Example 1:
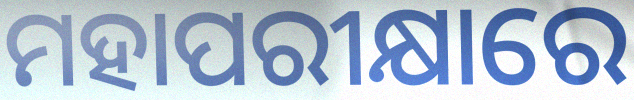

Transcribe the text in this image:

ମହାପରୀକ୍ଷାରେ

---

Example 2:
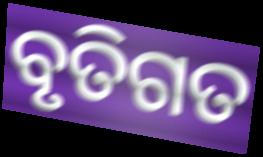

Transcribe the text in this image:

ବୃତିଗତ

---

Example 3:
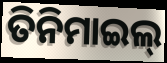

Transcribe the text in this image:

ତିନିମାଇଲ୍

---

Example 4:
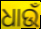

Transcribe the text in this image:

ଧାଉଁ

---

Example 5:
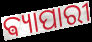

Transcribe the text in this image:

ଵ୍ୟାପାରୀ